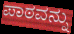
ಪಾಠವನ್ನು